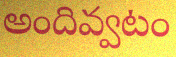
అందివ్వటం